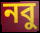
নবু